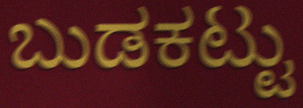
ಬುಡಕಟ್ಟು